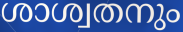
ശാശ്വതനും